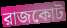
রাজকোট